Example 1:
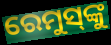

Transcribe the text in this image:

ରେମୁସ୍‌ଙ୍କୁ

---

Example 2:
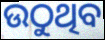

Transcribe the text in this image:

ଉଠୁଥିବ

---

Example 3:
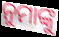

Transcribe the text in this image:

ନୁମାଙ୍କୁ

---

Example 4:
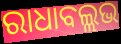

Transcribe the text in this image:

ରାଧାବଲ୍ଲଭ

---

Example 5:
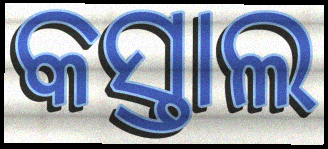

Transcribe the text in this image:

କସ୍ତାଲ